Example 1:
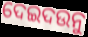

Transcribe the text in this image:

ଦେଇଦଉନୁ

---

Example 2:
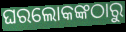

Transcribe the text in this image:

ଘରଲୋକଙ୍କଠାରୁ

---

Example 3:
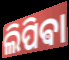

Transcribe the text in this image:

ଲିପିଵା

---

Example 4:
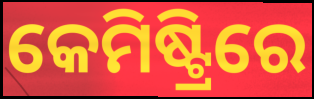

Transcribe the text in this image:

କେମିଷ୍ଟ୍ରିରେ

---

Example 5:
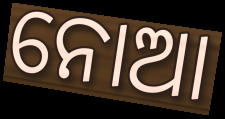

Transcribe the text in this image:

ନୋଆ